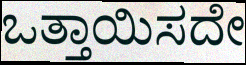
ಒತ್ತಾಯಿಸದೇ